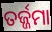
ତର୍ଜ୍ଜମା